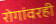
रोगांवरही